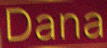
Dana